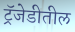
ट्रॅजेडीतील